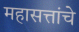
महासत्तांचे